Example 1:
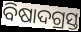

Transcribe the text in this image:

ବିଷାଦଗ୍ରସ୍ତ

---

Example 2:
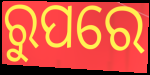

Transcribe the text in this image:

ରୁପରେ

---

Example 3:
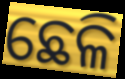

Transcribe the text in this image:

ଛେଳି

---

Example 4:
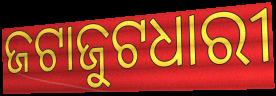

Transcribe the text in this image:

ଜଟାଜୁଟଧାରୀ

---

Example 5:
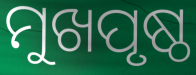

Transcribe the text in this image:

ମୁଖପୃଷ୍ଠ